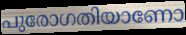
പുരോഗതിയാണോ